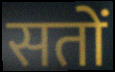
सतों